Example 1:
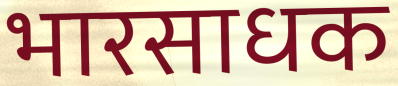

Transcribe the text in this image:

भारसाधक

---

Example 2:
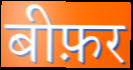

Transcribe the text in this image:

बीफ़र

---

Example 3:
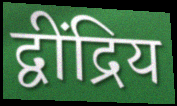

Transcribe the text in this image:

द्वींद्रिय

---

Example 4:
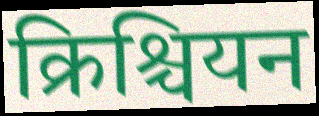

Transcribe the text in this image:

क्रिश्चियन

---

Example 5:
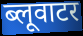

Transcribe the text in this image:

ब्लूवाटर